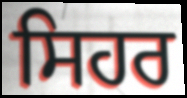
ਸਿਹਰ